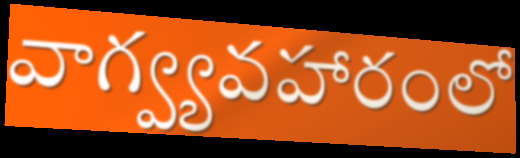
వాగ్వ్యవహారంలో